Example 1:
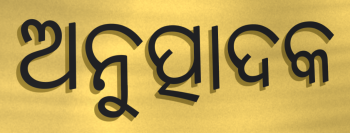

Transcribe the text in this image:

ଅନୁତ୍ପାଦକ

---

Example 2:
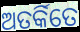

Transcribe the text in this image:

ଅତର୍କିତେ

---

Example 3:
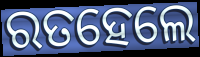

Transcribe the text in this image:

ରତହେଲେ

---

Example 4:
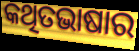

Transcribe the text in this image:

କଥିତଭାଷାର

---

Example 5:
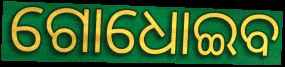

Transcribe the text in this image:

ଗୋଧୋଇବ